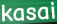
kasai